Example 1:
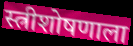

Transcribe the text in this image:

स्त्रीशोषणाला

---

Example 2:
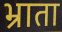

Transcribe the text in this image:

भ्राता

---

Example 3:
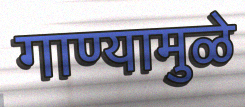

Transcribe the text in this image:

गाण्यामुळे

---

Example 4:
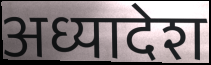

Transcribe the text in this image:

अध्यादेश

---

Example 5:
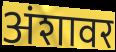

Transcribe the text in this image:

अंशावर